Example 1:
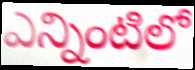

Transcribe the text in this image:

ఎన్నింటిలో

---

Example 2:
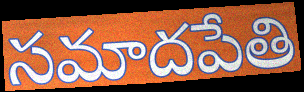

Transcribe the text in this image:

సమాదపేతి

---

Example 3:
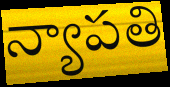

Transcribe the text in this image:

న్యాపతి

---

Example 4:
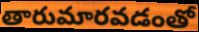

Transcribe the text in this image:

తారుమారవడంతో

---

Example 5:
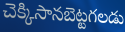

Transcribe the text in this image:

చెక్కిసానబెట్టగలడు